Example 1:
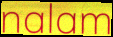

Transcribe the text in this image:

nalam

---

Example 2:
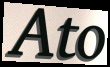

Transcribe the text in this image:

Ato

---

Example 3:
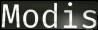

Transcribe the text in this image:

Modis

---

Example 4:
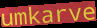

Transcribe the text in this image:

umkarve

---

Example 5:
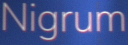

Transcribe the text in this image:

Nigrum